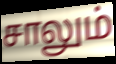
சாலும்